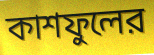
কাশফুলের